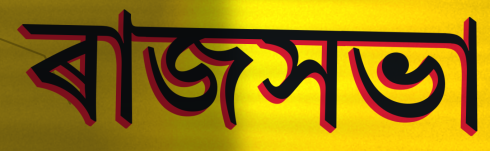
ৰাজসভা